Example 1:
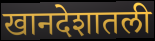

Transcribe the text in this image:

खानदेशातली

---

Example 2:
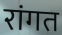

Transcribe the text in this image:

रांगत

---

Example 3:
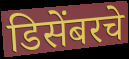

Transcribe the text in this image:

डिसेंबरचे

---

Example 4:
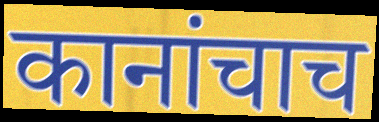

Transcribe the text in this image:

कानांचाच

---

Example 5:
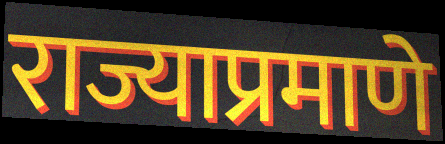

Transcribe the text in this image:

राज्याप्रमाणे